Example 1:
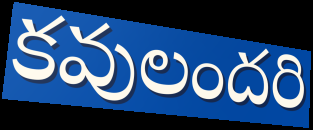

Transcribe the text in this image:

కవులందరి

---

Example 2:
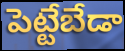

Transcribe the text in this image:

పెట్టేబేడా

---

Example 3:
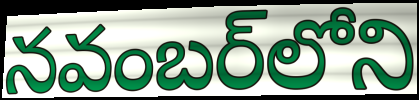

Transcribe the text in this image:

నవంబర్‌లోని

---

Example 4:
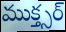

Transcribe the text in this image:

ముక్త్సర్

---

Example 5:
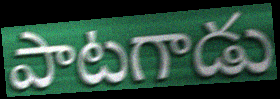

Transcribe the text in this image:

పాటగాడు